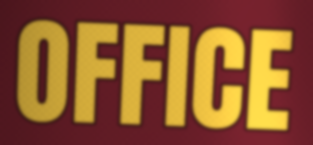
OFFICE